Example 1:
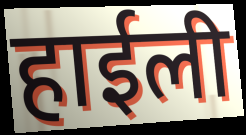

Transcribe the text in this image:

हाईली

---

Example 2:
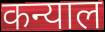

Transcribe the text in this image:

कन्याल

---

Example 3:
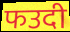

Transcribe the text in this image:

फउदी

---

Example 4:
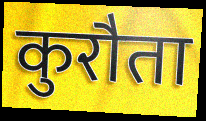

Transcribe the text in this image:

कुरौता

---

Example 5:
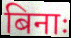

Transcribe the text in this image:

बिनाः